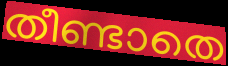
തീണ്ടാതെ